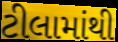
ટીલામાંથી